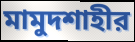
মামুদশাহীর